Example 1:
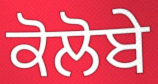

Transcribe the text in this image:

ਕੋਲੋਬੇ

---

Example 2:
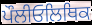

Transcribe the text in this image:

ਪੌਲੀਓਲਿਥਿਕ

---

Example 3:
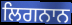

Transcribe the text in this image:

ਲਿਗਨਾਨ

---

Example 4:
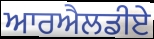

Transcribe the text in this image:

ਆਰਐਲਡੀਏ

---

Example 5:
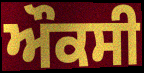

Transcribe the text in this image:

ਔਕਸੀ